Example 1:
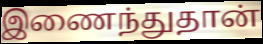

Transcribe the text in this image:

இணைந்துதான்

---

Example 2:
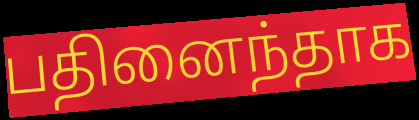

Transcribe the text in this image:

பதினைந்தாக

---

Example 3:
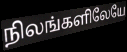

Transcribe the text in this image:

நிலங்களிலேயே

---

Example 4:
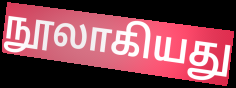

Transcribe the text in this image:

நூலாகியது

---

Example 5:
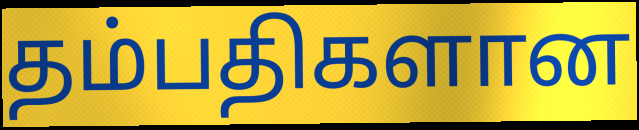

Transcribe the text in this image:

தம்பதிகளான